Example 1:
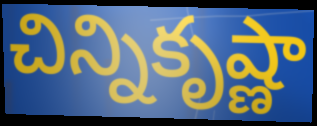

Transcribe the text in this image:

చిన్నికృష్ణా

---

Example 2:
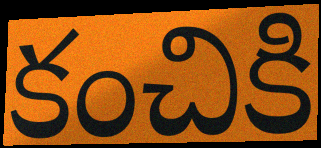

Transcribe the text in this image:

కంచికి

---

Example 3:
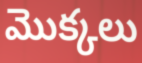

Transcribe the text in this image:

మొక్కలు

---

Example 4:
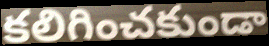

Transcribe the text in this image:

కలిగించకుండా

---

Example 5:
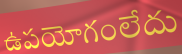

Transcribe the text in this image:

ఉపయోగంలేదు